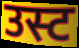
उस्ट